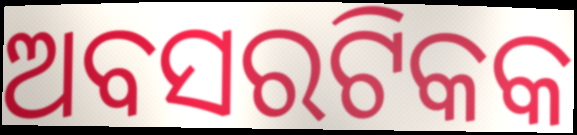
ଅବସରଟିକକ